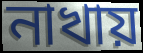
নাখায়